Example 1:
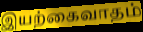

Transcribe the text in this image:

இயற்கைவாதம்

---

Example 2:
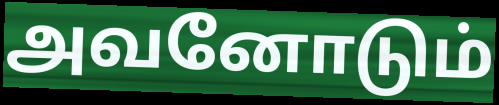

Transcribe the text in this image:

அவனோடும்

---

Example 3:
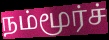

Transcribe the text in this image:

நம்மூர்ச்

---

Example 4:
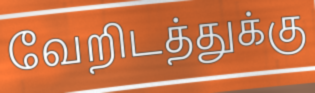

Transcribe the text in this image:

வேறிடத்துக்கு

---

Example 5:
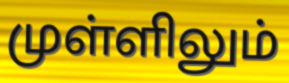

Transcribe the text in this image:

முள்ளிலும்